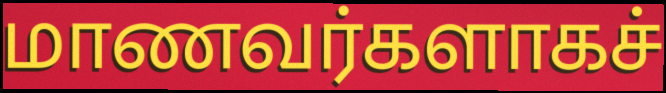
மாணவர்களாகச்